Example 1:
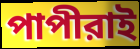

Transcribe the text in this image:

পাপীরাই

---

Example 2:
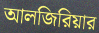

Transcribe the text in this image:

আলজিরিয়ার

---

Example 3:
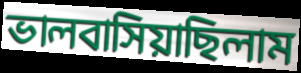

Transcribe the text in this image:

ভালবাসিয়াছিলাম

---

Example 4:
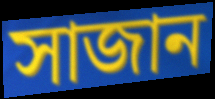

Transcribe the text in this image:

সাজান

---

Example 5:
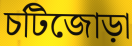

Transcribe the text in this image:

চটিজোড়া